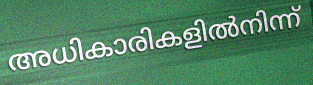
അധികാരികളിൽനിന്ന്